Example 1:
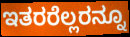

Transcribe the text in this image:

ಇತರರೆಲ್ಲರನ್ನೂ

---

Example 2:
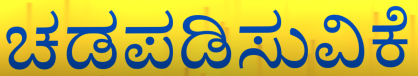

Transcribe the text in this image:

ಚಡಪಡಿಸುವಿಕೆ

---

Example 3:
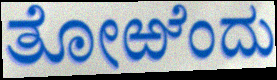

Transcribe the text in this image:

ತೋಱೆಂದು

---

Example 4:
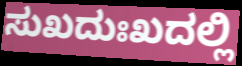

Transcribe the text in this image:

ಸುಖದುಃಖದಲ್ಲಿ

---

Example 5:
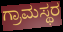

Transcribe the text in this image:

ಗ್ರಾಮಸ್ಥರ